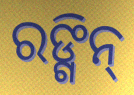
ରଙ୍ଗିନ୍